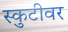
स्कुटीवर